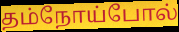
தம்நோய்போல்